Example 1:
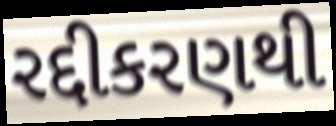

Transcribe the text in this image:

રદ્દીકરણથી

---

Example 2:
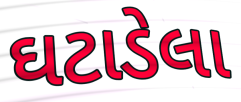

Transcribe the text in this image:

ઘટાડેલા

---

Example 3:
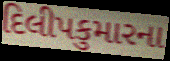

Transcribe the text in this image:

દિલીપકુમારના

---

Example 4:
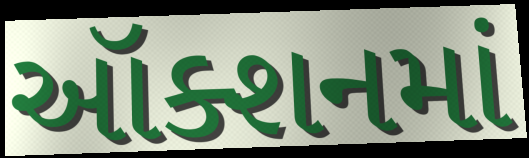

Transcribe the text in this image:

ઑક્શનમાં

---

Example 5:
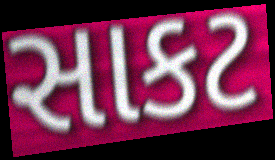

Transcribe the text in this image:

સાકટ